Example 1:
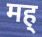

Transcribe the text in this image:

मह्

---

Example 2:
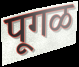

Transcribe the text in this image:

पूगळ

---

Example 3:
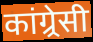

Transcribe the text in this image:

कांग्र्रेसी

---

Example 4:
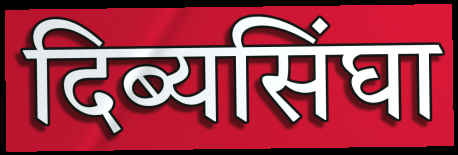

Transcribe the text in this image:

दिब्यसिंघा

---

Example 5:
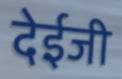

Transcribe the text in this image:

देईजी